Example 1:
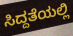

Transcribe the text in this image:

ಸಿದ್ದತೆಯಲ್ಲಿ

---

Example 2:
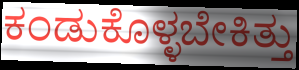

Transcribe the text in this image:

ಕಂಡುಕೊಳ್ಳಬೇಕಿತ್ತು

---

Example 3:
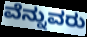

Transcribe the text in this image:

ವೆನ್ನುವರು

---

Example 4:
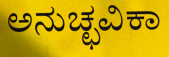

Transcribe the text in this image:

ಅನುಚ್ಛವಿಕಾ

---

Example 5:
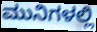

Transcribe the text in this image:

ಮುನಿಗಳಲ್ಲಿ